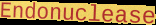
Endonuclease